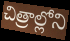
చిత్రాల్లోని